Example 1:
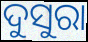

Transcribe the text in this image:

ଦୁସୁରା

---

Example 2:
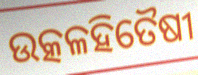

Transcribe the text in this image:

ଉତ୍କଳହିତୈଷୀ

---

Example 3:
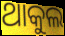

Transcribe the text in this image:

ଥାକୁଲ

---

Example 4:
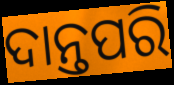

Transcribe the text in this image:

ଦାନ୍ତପରି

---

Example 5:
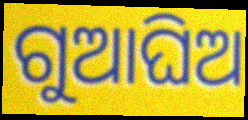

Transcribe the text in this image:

ଗୁଆଘିଅ